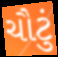
ચૌટું